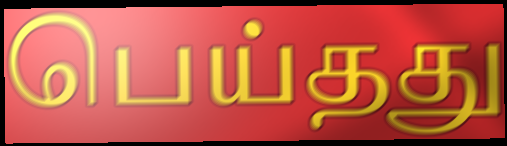
பெய்தது